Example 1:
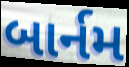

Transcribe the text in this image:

બાર્નમ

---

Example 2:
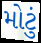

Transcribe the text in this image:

મોટું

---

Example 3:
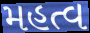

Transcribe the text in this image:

મહત્વ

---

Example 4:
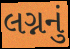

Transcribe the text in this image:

લગ્નનું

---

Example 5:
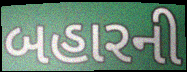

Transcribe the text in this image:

બહારની